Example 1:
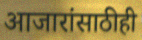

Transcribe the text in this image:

आजारांसाठीही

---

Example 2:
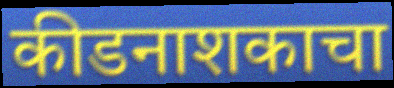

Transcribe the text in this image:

कीडनाशकाचा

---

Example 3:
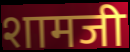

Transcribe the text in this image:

शामजी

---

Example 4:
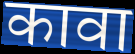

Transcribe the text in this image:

कावा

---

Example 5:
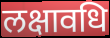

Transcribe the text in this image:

लक्षावधि